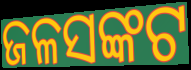
ଜଳସଙ୍କଟ